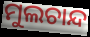
ମୁଲଚାନ୍ଦ